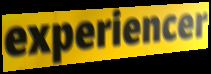
experiencer